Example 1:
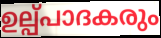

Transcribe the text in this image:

ഉല്പ്പാദകരും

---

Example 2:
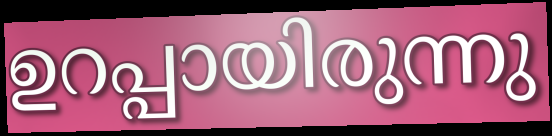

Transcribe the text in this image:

ഉറപ്പായിരുന്നു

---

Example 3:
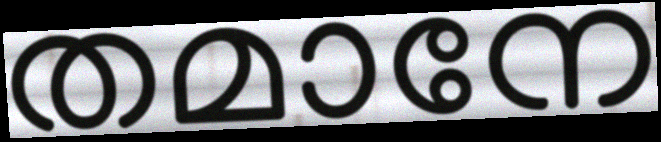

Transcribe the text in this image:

തമാനേ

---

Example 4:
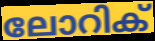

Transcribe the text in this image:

ലോറിക്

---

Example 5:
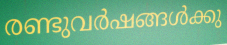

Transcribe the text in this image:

രണ്ടുവർഷങ്ങൾക്കു